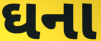
ઘના